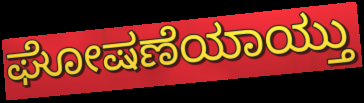
ಘೋಷಣೆಯಾಯ್ತು